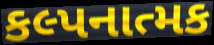
કલ્પનાત્મક